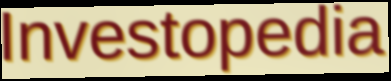
Investopedia